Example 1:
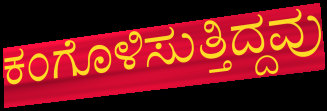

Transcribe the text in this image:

ಕಂಗೊಳಿಸುತ್ತಿದ್ದವು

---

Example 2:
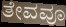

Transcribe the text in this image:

ತೇವವೂ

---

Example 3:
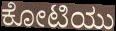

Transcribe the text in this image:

ಕೋಟಿಯು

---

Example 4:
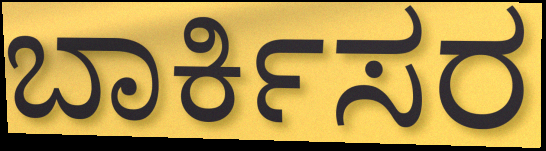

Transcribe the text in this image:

ಬಾರ್ಕಿಸರ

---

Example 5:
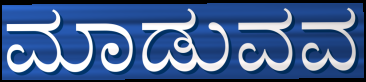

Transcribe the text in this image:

ಮಾಡುವವ